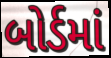
બોર્ડમાં